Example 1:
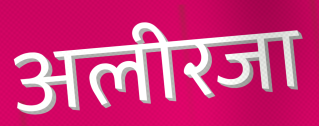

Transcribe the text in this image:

अलीरजा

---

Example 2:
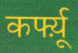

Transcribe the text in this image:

कर्फ्य़ू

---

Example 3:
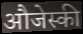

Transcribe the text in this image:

औजेस्की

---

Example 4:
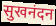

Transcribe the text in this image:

सुखनंदन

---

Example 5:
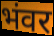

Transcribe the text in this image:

भंवर